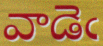
వాడెఁ